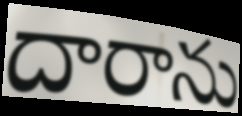
దారాను